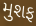
મુશફ